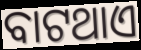
ବାଟଥାଏ